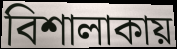
বিশালাকায়